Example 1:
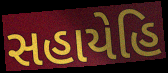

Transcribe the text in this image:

સહાયેહિ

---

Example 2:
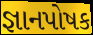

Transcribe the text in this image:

જ્ઞાનપોષક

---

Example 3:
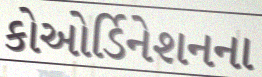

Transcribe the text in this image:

કોઓર્ડિનેશનના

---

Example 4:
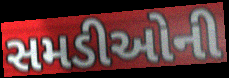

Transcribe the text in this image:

સમડીઓની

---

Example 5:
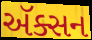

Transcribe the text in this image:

ઍક્સન